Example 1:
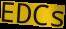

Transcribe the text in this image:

EDCs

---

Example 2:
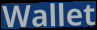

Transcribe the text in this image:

Wallet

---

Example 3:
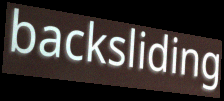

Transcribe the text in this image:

backsliding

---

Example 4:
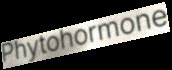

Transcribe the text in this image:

Phytohormone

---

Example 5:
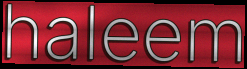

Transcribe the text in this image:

haleem